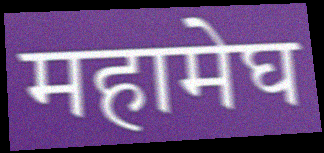
महामेघ